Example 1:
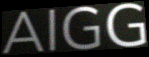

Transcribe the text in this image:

AIGG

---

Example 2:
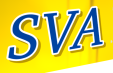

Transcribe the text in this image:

SVA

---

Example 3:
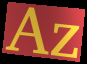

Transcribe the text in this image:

Az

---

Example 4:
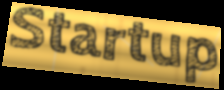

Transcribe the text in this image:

Startup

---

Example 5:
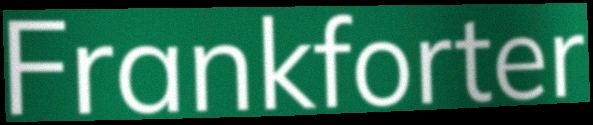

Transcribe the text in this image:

Frankforter